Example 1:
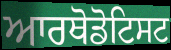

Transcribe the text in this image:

ਆਰਥੋਡੋਟਿਸਟ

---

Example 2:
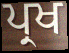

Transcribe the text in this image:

ਪ੍ਰਖ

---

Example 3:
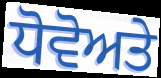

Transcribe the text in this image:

ਧੋਵੋਅਤੇ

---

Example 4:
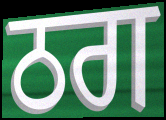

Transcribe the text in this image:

ਠਗ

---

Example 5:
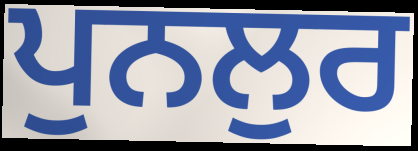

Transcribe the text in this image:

ਪੁਨਲੁਰ